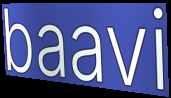
baavi